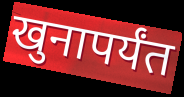
खुनापर्यंत